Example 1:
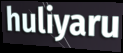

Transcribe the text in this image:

huliyaru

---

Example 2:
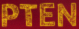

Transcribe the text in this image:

PTEN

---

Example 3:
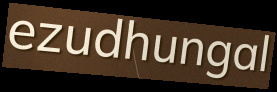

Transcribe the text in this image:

ezudhungal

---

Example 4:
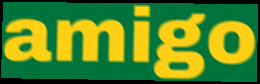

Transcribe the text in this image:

amigo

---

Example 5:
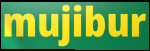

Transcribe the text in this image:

mujibur